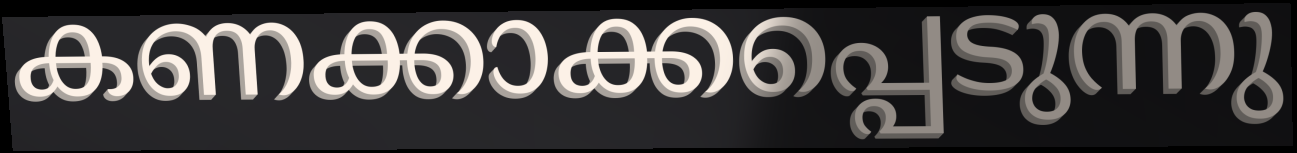
കണക്കാക്കപ്പെടുന്നു